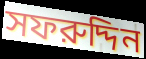
সফরুদ্দিন